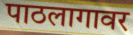
पाठलागावर